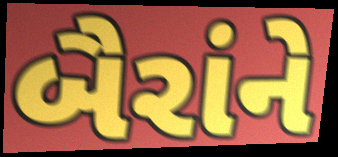
બૈરાંને